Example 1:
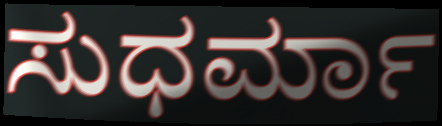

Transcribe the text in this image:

ಸುಧರ್ಮಾ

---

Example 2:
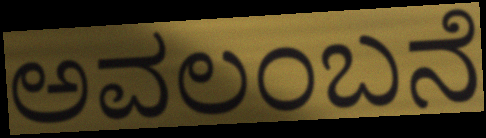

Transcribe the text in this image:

ಅವಲಂಬನೆ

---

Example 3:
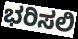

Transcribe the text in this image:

ಭರಿಸಲಿ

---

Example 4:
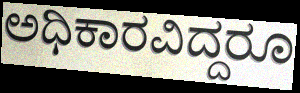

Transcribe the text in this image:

ಅಧಿಕಾರವಿದ್ದರೂ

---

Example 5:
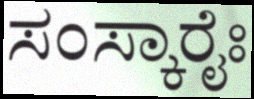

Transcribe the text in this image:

ಸಂಸ್ಕಾರೈಃ